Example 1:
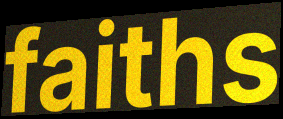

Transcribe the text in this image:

faiths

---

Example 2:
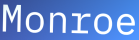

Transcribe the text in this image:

Monroe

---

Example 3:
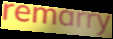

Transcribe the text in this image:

remarry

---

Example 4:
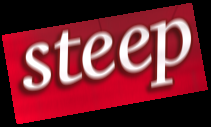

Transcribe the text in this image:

steep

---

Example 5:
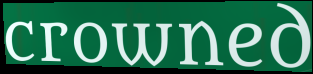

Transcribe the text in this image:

crowned